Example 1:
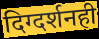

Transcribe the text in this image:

दिग्दर्शनही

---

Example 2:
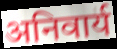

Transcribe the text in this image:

अनिवार्य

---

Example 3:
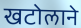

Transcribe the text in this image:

खटोलाने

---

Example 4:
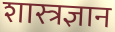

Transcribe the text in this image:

शास्त्रज्ञान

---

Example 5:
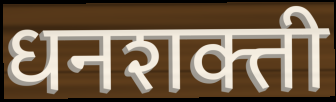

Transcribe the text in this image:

धनशक्ती